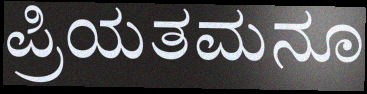
ಪ್ರಿಯತಮನೂ